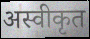
अस्वीकृत